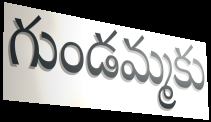
గుండమ్మకు